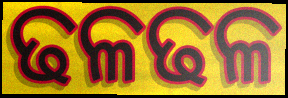
ଢଳଢଳ